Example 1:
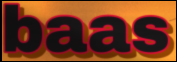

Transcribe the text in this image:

baas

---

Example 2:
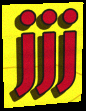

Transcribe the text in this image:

jjj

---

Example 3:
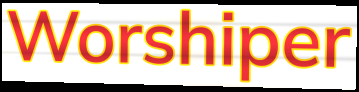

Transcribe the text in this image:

Worshiper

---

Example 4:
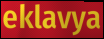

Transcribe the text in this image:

eklavya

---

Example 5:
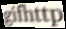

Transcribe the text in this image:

gifhttp